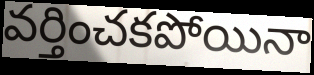
వర్తించకపోయినా